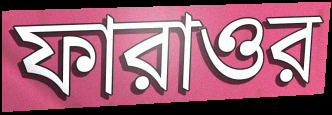
ফারাওর